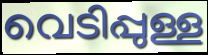
വെടിപ്പുള്ള